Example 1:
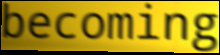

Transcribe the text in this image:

becoming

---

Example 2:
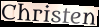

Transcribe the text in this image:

Christen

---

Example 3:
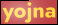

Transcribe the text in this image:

yojna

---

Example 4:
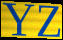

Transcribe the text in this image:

YZ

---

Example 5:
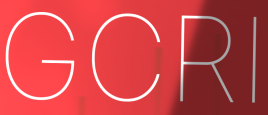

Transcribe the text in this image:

GCRI